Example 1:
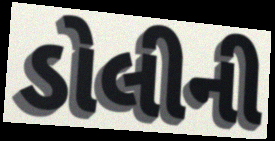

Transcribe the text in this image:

ડોલીની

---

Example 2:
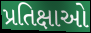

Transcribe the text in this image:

પ્રતિક્ષાઓ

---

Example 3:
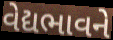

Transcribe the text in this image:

વેદ્યભાવને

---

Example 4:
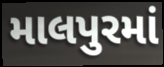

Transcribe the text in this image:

માલપુરમાં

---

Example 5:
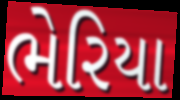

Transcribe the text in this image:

ભેરિયા